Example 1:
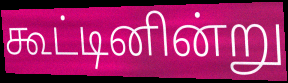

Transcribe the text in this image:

கூட்டினின்று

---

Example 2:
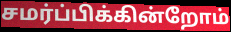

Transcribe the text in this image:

சமர்ப்பிக்கின்றோம்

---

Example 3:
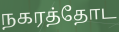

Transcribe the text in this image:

நகரத்தோட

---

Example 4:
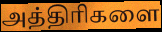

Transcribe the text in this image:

அத்திரிகளை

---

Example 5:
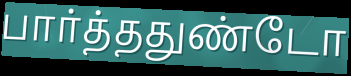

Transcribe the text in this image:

பார்த்ததுண்டோ